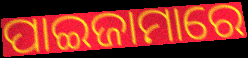
ପାଇଜାମାରେ